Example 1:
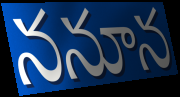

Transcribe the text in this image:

ననూన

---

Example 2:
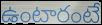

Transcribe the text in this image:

ఉంటారంటే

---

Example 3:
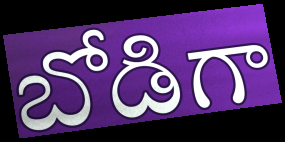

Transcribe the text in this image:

బోడిగా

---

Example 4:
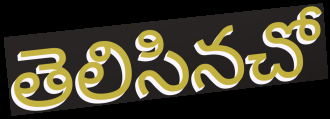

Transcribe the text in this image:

తెలిసినచో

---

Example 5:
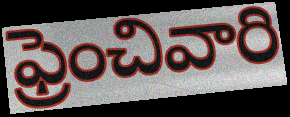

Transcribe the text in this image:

ఫ్రెంచివారి